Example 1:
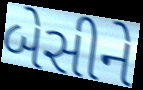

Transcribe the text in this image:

બેસીને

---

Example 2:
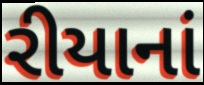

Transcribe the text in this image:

રીયાનાં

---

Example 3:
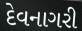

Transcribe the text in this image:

દેવનાગરી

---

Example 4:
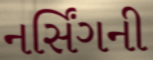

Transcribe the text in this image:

નર્સિંગની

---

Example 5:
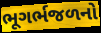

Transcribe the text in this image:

ભૂગર્ભજળનો